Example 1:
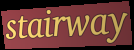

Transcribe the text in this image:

stairway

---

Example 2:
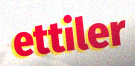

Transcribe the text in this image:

ettiler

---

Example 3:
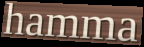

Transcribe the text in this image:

hamma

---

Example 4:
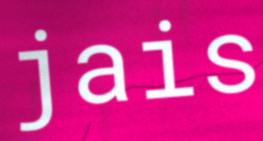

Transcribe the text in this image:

jais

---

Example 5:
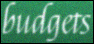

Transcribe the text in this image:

budgets